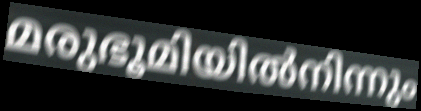
മരുഭൂമിയിൽനിന്നും